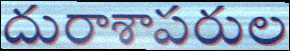
దురాశాపరుల